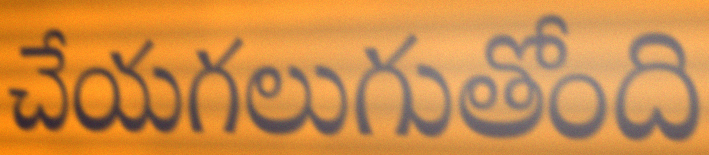
చేయగలుగుతోంది